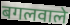
बगलवाले